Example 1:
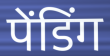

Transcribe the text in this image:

पेंडिंग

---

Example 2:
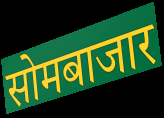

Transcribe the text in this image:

सोमबाजार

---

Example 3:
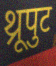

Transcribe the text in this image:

थ्रूपुट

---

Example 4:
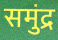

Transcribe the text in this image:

समुंद्र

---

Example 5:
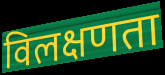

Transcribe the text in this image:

विलक्षणता